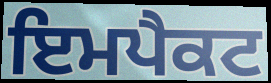
ਇਮਪੈਕਟ